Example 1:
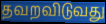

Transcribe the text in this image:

தவறவிடுவது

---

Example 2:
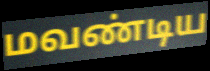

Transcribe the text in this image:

மவண்டிய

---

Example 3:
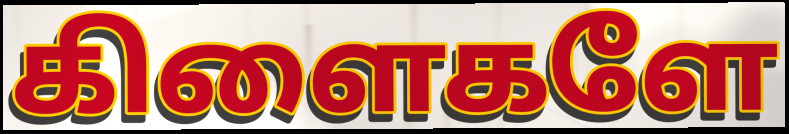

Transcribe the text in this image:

கிளைகளே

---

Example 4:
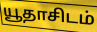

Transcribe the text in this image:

யூதாசிடம்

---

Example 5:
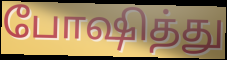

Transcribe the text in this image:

போஷித்து